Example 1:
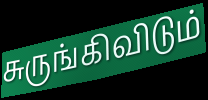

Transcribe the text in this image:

சுருங்கிவிடும்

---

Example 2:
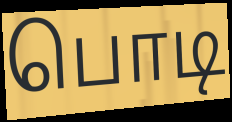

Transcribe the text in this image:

பொடி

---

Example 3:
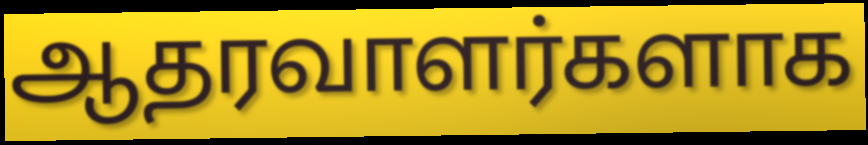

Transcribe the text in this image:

ஆதரவாளர்களாக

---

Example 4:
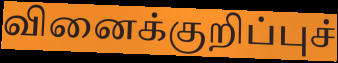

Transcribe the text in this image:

வினைக்குறிப்புச்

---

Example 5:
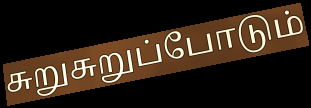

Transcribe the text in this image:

சுறுசுறுப்போடும்